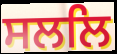
ਸਲਲਿ